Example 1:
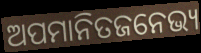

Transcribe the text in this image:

ଅପମାନିତଜନେଭ୍ୟ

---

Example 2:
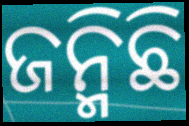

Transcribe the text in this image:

ଜନ୍ମିଛି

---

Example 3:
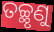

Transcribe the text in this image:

ତଚ୍ଛୃଣୁ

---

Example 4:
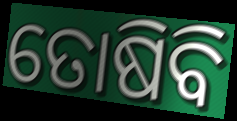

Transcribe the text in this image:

ତୋଷିବି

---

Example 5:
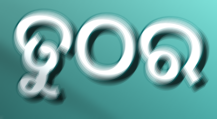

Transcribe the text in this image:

ତୁଠର